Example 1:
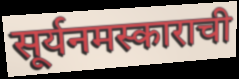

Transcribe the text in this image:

सूर्यनमस्काराची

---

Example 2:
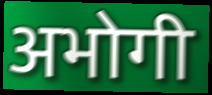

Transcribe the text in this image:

अभोगी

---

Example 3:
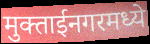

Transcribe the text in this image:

मुक्ताईनगरमध्ये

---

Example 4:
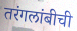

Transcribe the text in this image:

तरंगलांबीची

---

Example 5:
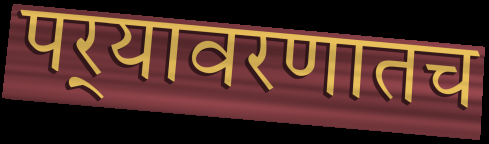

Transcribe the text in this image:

पर्यावरणातच